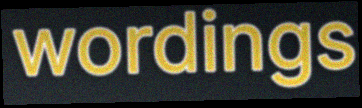
wordings